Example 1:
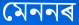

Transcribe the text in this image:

মেননৰ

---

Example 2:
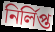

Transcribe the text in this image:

নিৰ্লিপ্ত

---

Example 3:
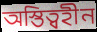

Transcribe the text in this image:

অস্তিত্বহীন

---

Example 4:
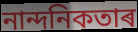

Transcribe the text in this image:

নান্দনিকতাৰ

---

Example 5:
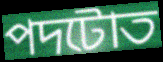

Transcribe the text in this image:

পদটোত